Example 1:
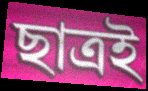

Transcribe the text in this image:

ছাত্ৰই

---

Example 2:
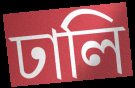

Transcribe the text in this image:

ঢালি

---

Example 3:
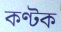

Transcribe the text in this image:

কণ্টক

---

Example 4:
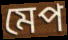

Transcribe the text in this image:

মেপ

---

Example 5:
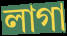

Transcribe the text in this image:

লাগা